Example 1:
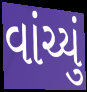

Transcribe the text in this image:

વાંચ્યું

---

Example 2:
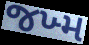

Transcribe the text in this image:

જખ્મ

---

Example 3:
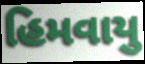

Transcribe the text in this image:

હિમવાયુ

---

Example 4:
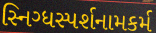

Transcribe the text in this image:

સ્નિગ્ધસ્પર્શનામકર્મ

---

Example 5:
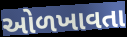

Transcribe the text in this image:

ઓળખાવતા